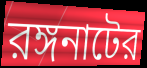
রঙ্গনাটের